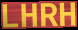
LHRH